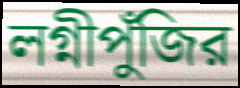
লগ্নীপুঁজির